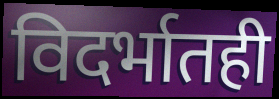
विदर्भातही